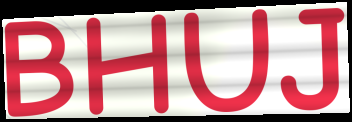
BHUJ